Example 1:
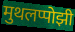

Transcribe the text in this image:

मुथलप्पोझी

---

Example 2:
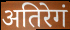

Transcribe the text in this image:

अतिरेगं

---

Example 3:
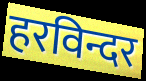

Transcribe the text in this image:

हरविन्दर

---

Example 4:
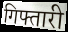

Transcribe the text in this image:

गिफ्तारी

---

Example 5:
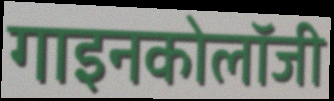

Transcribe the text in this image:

गाइनकोलॉजी